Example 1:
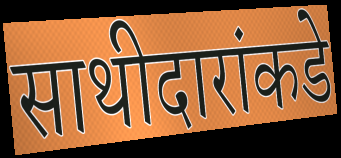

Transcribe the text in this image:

साथीदारांकडे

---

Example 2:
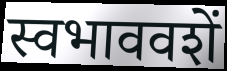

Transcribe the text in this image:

स्वभाववशें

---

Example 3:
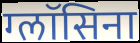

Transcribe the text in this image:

ग्लॉसिना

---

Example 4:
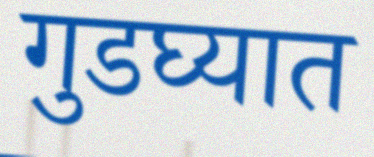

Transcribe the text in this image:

गुडघ्यात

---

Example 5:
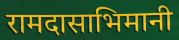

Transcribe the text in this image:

रामदासाभिमानी